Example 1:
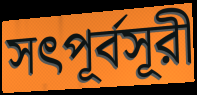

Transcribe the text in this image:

সৎপূর্বসূরী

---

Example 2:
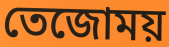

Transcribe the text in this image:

তেজোময়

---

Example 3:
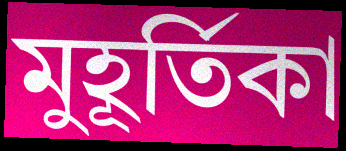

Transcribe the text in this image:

মুহূর্তিকা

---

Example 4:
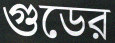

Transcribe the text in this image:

গুডের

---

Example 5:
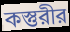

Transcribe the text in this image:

কস্তুরীর